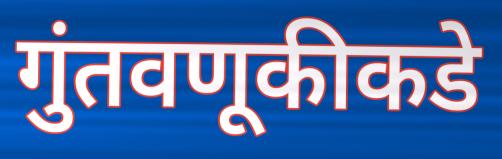
गुंतवणूकीकडे